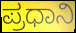
ಪ್ರಧಾನಿ